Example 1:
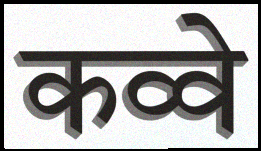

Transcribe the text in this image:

कव्वे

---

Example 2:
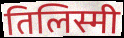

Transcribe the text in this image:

तिलिस्मी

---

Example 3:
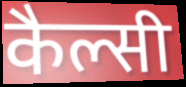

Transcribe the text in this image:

कैल्सी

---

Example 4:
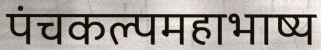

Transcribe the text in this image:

पंचकल्पमहाभाष्य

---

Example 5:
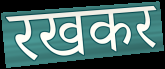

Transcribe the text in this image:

रखकर